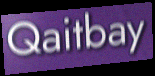
Qaitbay